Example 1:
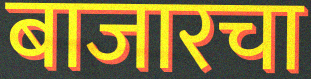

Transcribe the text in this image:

बाजारचा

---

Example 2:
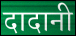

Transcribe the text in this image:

दादानी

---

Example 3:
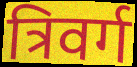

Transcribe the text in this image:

त्रिवर्ग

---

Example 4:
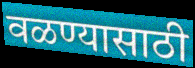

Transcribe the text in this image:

वळण्यासाठी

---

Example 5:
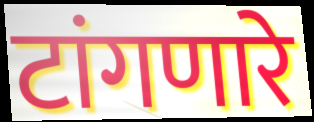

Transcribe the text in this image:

टांगणारे